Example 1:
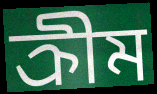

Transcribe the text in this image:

ক্ৰীম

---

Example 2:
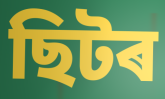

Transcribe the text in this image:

ছিটৰ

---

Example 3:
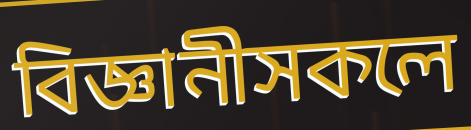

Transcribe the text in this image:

বিজ্ঞানীসকলে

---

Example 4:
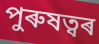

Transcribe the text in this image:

পুৰুষত্বৰ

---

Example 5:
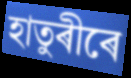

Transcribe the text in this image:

হাতুৰীৰে